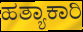
ಹತ್ಯಾಕಾರಿ